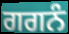
ਗਗਨੰ